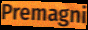
Premagni